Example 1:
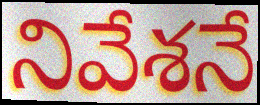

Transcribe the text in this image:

నివేశనే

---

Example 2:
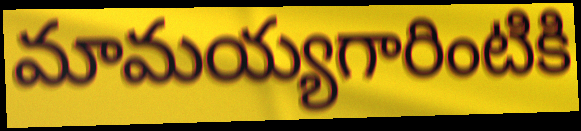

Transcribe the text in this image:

మామయ్యగారింటికి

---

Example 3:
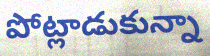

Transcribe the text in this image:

పోట్లాడుకున్నా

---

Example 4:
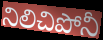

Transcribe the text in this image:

నిలిచిపోనీ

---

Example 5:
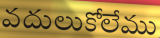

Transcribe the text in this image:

వదులుకోలేము